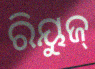
ରିୟୁଜ୍